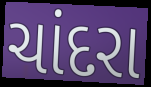
ચાંદરા